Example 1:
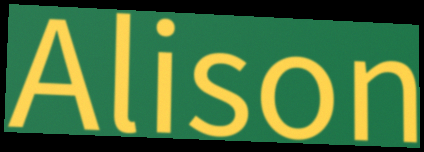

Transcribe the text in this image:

Alison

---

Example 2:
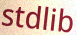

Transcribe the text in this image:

stdlib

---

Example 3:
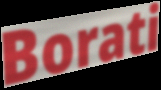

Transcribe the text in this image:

Borati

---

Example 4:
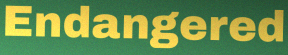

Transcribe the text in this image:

Endangered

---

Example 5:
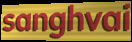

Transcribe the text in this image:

sanghvai